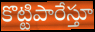
కొట్టిపారేస్తూ